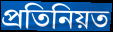
প্ৰতিনিয়ত